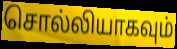
சொல்லியாகவும்